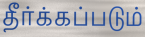
தீர்க்கப்படும்